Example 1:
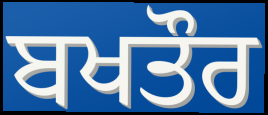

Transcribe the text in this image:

ਬਖਤੌਰ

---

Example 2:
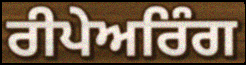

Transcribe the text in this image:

ਰੀਪੇਅਰਿੰਗ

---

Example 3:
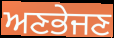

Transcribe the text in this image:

ਅਣਭੇਜਣ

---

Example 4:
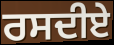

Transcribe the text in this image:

ਰਸਦੀਏ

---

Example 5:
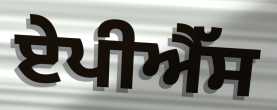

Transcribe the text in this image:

ਏਪੀਐੱਸ